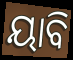
ୟାବି